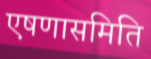
एषणासमिति